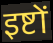
इष्टों